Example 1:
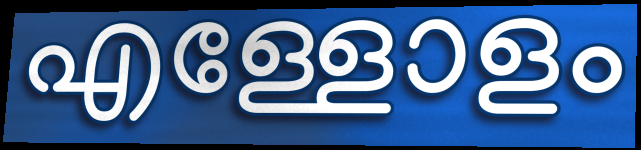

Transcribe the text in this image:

എള്ളോളം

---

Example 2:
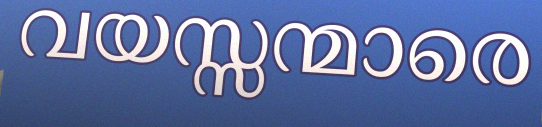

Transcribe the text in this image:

വയസ്സന്മാരെ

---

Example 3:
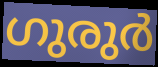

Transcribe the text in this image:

ഗുരുർ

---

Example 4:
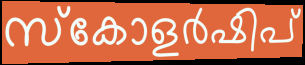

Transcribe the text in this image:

സ്കോളർഷിപ്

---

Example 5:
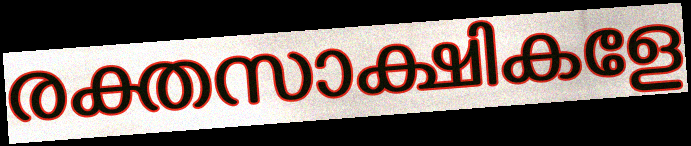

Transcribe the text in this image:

രക്തസാക്ഷികളേ